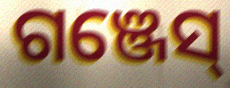
ଗଞ୍ଜେସ୍